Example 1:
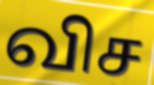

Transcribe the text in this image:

விச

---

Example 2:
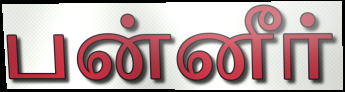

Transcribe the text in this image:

பன்னீர்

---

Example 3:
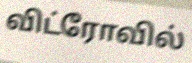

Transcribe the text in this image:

விட்ரோவில்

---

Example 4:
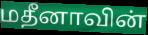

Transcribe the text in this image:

மதீனாவின்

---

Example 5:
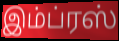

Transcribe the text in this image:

இம்ப்ரஸ்